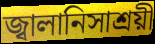
জ্বালানিসাশ্রয়ী